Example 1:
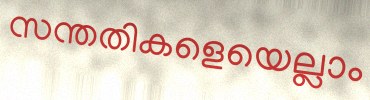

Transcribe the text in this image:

സന്തതികളെയെല്ലാം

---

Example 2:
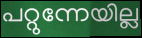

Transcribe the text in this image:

പറ്റുന്നേയില്ല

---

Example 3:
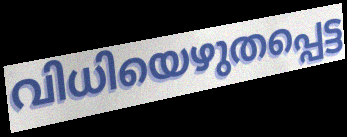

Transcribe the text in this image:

വിധിയെഴുതപ്പെട്ട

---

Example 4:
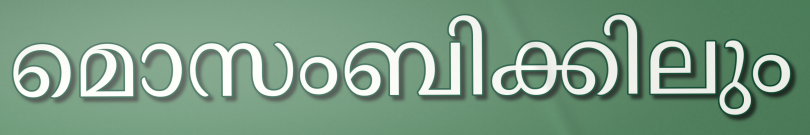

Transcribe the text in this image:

മൊസംബിക്കിലും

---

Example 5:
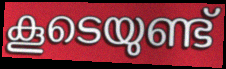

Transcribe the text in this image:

കൂടെയുണ്ട്